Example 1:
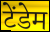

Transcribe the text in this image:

टेंडेम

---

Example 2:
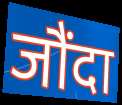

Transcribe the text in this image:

जौंदा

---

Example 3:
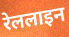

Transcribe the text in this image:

रेललाइन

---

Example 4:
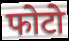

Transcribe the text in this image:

फोटो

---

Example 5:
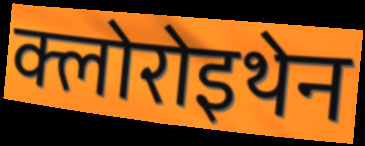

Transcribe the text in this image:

क्लोरोइथेन